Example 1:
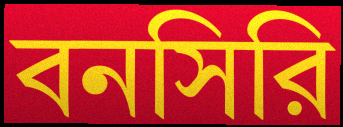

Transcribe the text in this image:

বনসিরি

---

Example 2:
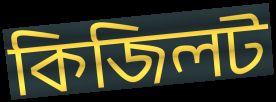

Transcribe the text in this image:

কিজিলট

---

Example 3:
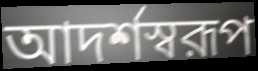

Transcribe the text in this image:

আদর্শস্বরূপ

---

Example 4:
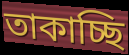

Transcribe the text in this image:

তাকাচ্ছি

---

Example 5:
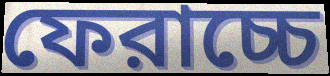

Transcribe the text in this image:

ফেরাচ্চে